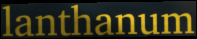
lanthanum